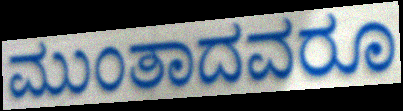
ಮುಂತಾದವರೂ